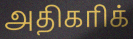
அதிகரிக்